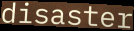
disaster